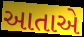
આતાએ